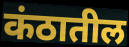
कंठातील